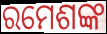
ରମେଶଙ୍କ